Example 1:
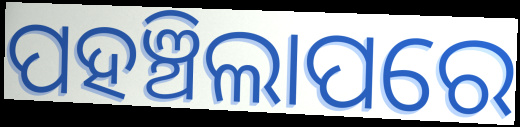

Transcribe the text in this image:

ପହଞ୍ଚିଲାପରେ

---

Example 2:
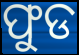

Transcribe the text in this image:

ଫୁଡ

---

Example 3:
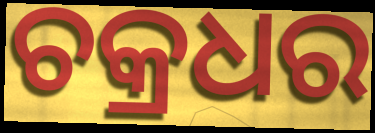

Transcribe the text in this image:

ଚକ୍ରଧର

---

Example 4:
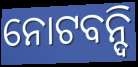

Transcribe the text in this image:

ନୋଟବନ୍ଦି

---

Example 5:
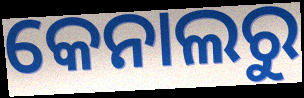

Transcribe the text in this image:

କେନାଲରୁ